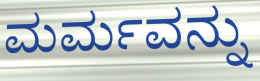
ಮರ್ಮವನ್ನು